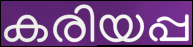
കരിയപ്പ